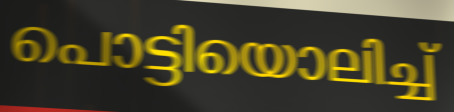
പൊട്ടിയൊലിച്ച്